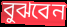
বুঝবেন